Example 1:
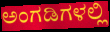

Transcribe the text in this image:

ಅಂಗಡಿಗಳಲ್ಲಿ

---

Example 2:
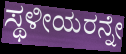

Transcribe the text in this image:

ಸ್ಥಳೀಯರನ್ನೇ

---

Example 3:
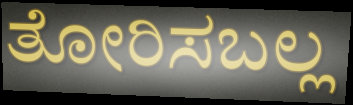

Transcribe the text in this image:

ತೋರಿಸಬಲ್ಲ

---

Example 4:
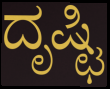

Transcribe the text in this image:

ದೃಷ್ಟಿ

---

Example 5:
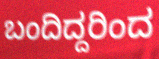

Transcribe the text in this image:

ಬಂದಿದ್ದರಿಂದ